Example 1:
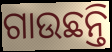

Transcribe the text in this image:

ଗାଉଛନ୍ତି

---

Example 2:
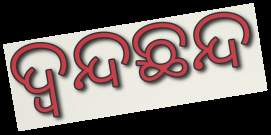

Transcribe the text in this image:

ଦ୍ୱନ୍ଦଛନ୍ଦ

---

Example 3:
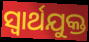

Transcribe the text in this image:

ସ୍ୱାର୍ଥଯୁକ୍ତ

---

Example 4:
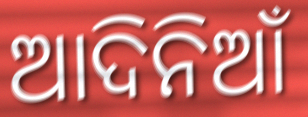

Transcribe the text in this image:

ଆଦିନିଆଁ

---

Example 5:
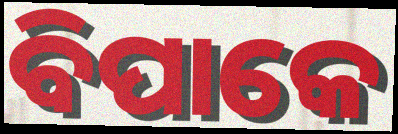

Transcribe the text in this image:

ବିପାକେ